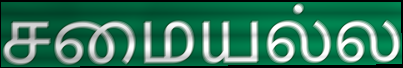
சமையல்ல